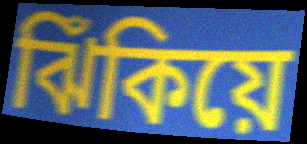
ঝিঁকিয়ে